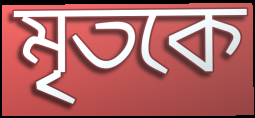
মৃতকে